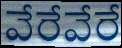
వేరేవేరే